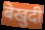
बेखुदी